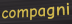
compagni